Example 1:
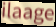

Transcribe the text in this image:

ilaage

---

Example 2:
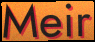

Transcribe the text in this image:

Meir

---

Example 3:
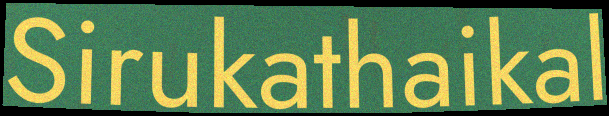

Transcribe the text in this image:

Sirukathaikal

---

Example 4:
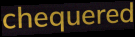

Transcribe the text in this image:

chequered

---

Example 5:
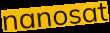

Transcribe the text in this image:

nanosat